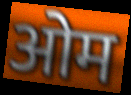
ओम